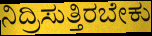
ನಿದ್ರಿಸುತ್ತಿರಬೇಕು